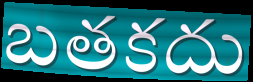
బతకదు